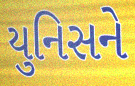
યુનિસને